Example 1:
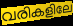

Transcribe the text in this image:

വരികളിലേ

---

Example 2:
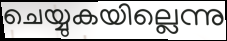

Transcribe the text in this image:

ചെയ്യുകയില്ലെന്നു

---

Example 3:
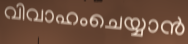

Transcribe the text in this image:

വിവാഹംചെയ്യാൻ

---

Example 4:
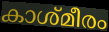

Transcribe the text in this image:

കാശ്മീരം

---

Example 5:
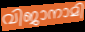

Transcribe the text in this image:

വിജാനാമി